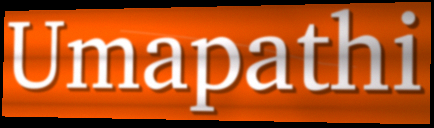
Umapathi